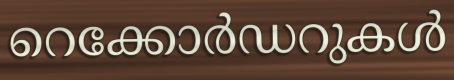
റെക്കോർഡറുകൾ